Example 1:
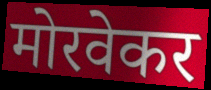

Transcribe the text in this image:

मोरवेकर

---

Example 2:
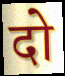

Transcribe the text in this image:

दो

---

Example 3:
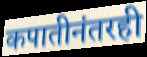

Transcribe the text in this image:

कपातीनंतरही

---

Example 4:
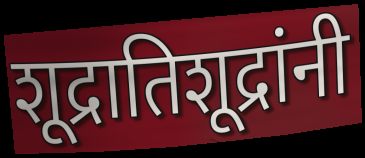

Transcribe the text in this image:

शूद्रातिशूद्रांनी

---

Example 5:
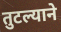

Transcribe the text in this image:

तुटल्याने